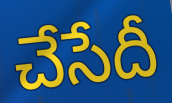
చేసేదీ